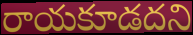
రాయకూడదని